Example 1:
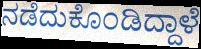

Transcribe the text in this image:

ನಡೆದುಕೊಂಡಿದ್ದಾಳೆ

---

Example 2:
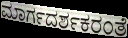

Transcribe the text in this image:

ಮಾರ್ಗದರ್ಶಕರಂತೆ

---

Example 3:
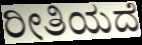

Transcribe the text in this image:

ರೀತಿಯದೆ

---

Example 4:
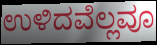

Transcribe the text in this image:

ಉಳಿದವೆಲ್ಲವೂ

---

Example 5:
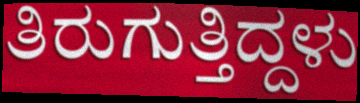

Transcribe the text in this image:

ತಿರುಗುತ್ತಿದ್ದಳು